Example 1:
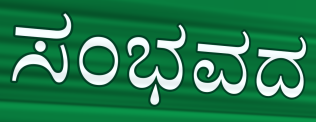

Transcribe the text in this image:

ಸಂಭವದ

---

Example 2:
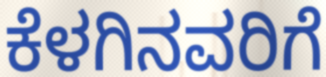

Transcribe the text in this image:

ಕೆಳಗಿನವರಿಗೆ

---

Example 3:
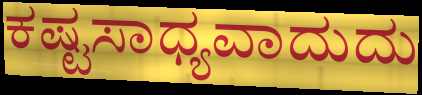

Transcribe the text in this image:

ಕಷ್ಟಸಾಧ್ಯವಾದುದು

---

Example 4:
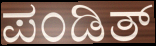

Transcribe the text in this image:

ಪಂಡಿತ್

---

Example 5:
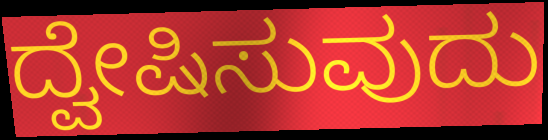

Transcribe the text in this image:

ದ್ವೇಷಿಸುವುದು